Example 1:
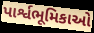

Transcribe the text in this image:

પાર્શ્વભૂમિકાઓ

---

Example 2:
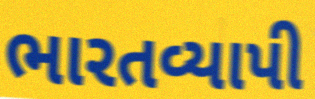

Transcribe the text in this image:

ભારતવ્યાપી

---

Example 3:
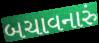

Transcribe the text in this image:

બચાવનારું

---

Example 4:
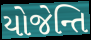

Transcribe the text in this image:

યોજેન્તિ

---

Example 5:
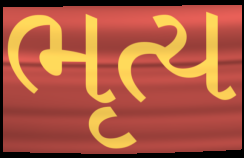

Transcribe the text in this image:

ભૃત્ય